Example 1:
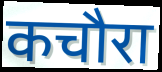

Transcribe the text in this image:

कचौरा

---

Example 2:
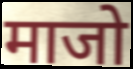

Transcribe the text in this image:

माजो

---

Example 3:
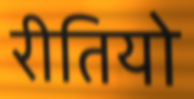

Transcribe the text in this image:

रीतियो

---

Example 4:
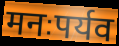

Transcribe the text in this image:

मनःपर्यव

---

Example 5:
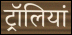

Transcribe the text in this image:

ट्रॉलियां